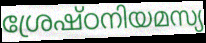
ശ്രേഷ്ഠനിയമസ്യ